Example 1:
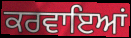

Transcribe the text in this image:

ਕਰਵਾਇਆਂ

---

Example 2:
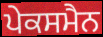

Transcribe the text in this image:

ਪੇਕਸਮੈਨ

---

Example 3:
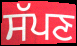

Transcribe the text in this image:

ਸੱਪਣ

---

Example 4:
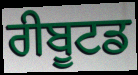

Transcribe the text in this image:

ਰੀਬੂਟਡ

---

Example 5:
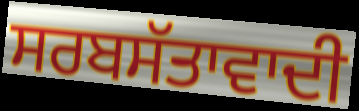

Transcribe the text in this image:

ਸਰਬਸੱਤਾਵਾਦੀ